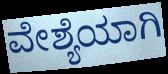
ವೇಶ್ಯೆಯಾಗಿ